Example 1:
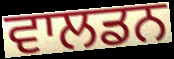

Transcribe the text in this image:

ਵਾਲਡਨ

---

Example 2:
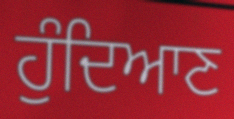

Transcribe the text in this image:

ਹੁੰਦਿਆਣ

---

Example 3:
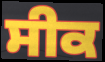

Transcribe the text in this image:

ਸੀਕ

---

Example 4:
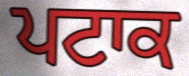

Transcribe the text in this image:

ਪਟਾਕ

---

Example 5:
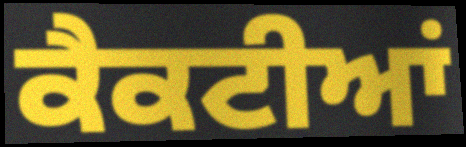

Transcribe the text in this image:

ਕੈਕਟੀਆਂ